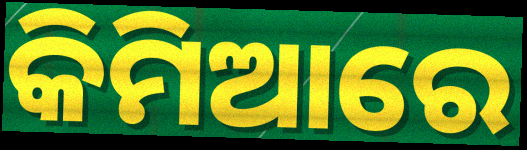
କିମିଆରେ